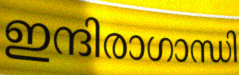
ഇന്ദിരാഗാന്ധി